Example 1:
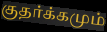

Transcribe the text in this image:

குதர்க்கமும்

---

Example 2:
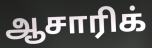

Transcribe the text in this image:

ஆசாரிக்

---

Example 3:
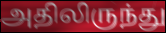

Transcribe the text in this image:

அதிலிருந்து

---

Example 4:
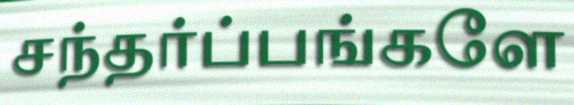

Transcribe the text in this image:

சந்தர்ப்பங்களே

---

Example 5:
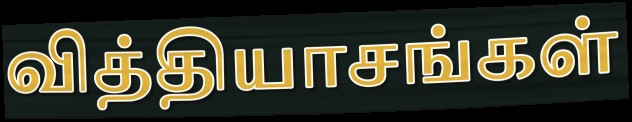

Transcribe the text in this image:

வித்தியாசங்கள்